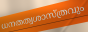
ധനതത്വശാസ്ത്രവും